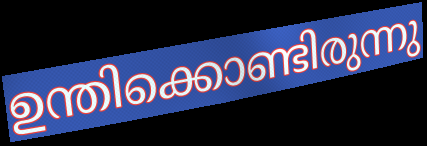
ഉന്തിക്കൊണ്ടിരുന്നു